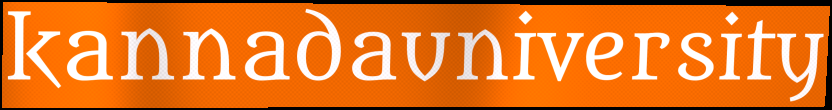
kannadauniversity